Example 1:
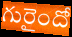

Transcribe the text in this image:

గురైందో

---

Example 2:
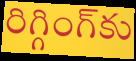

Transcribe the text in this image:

రిగ్గింగ్‌కు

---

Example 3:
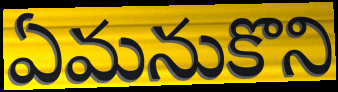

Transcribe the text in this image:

ఏమనుకొని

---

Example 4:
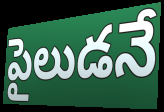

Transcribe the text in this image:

పైలుడనే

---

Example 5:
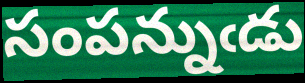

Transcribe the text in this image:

సంపన్నుఁడు